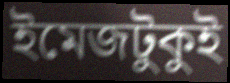
ইমেজটুকুই